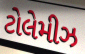
ટોલેમીઝ